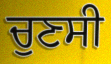
ਚੁਣਸੀ